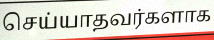
செய்யாதவர்களாக